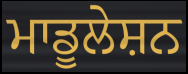
ਮਾਡੂਲੇਸ਼ਨ